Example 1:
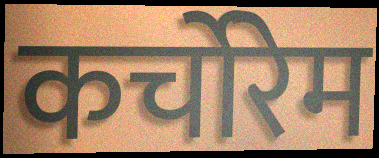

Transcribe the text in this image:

कर्चोरेम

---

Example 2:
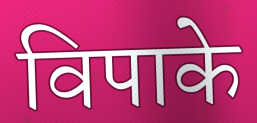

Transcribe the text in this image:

विपाके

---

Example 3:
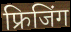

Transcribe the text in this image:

फ्रिजिंग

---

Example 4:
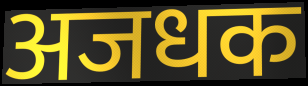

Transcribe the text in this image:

अजधक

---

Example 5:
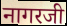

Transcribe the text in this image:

नागरजी